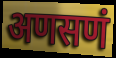
अणसणं